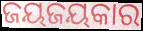
ଜୟଜୟକାର